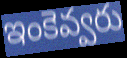
ఇంకెవ్వరు